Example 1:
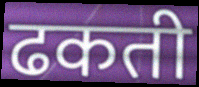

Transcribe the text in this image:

ढकती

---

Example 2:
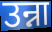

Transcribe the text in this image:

उन्ना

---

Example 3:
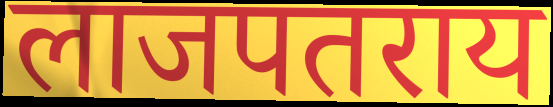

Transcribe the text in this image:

लाजपतराय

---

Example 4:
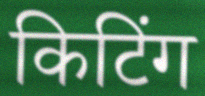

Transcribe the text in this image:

किटिंग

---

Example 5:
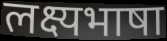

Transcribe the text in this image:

लक्ष्यभाषा